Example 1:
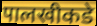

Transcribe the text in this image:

पालखीकडे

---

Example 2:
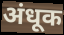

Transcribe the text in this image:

अंधूक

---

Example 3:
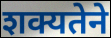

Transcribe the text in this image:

शक्यतेने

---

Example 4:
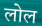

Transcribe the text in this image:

लोल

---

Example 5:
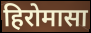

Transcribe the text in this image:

हिरोमासा